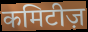
कमिटीज़